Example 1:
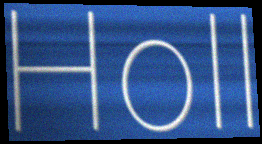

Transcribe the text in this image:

Holl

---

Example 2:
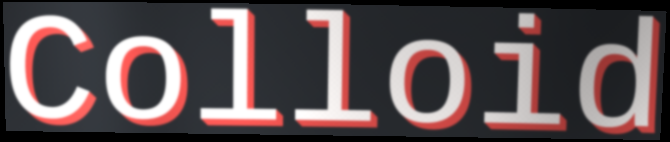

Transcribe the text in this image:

Colloid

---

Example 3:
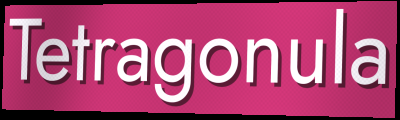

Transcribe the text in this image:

Tetragonula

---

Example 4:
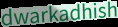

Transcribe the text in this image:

dwarkadhish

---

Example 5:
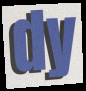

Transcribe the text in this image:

dy